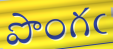
పొంగఁ